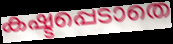
കഷ്ടപ്പെടാതെ